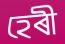
হেৰী